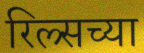
रिल्सच्या